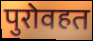
पुरोवहत